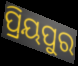
ପ୍ରିୟପୁର